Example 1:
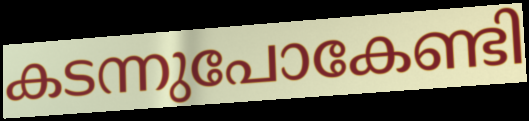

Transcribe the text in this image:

കടന്നുപോകേണ്ടി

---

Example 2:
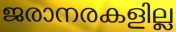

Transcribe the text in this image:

ജരാനരകളില്ല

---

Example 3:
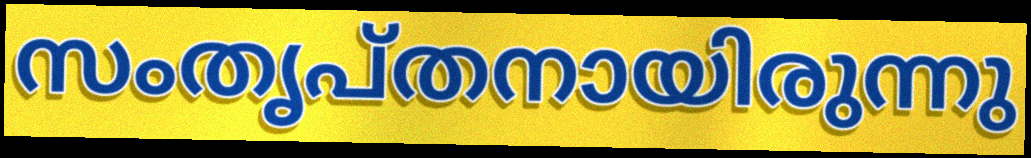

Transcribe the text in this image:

സംതൃപ്തനായിരുന്നു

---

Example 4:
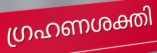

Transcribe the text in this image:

ഗ്രഹണശക്തി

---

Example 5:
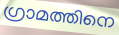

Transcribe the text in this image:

ഗ്രാമത്തിനെ